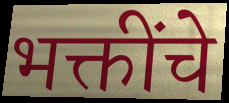
भक्तींचे